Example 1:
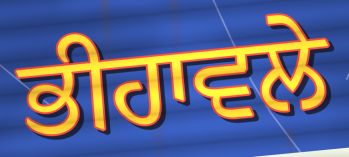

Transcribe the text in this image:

ਭੀਹਾਵਲੇ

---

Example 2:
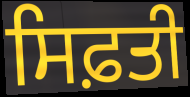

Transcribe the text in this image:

ਸਿਫ਼ਤੀ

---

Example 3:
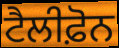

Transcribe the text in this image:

ਟੈਲੀਫ਼ੋਨ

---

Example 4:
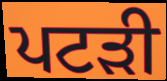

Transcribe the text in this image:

ਪਟੜੀ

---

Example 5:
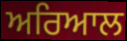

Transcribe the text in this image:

ਅਰਿਆਲ